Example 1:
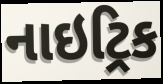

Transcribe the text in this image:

નાઇટ્રિક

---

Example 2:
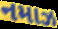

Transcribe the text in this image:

નમાઝ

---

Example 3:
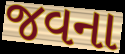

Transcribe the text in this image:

જવના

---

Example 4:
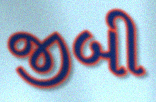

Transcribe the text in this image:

જીબી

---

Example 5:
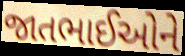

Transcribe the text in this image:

જાતભાઈઓને